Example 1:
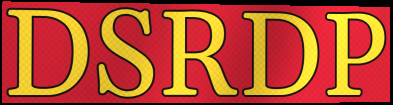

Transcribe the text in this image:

DSRDP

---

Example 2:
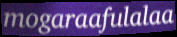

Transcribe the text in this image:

mogaraafulalaa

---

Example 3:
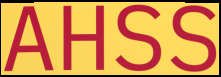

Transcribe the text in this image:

AHSS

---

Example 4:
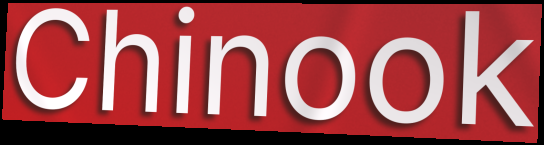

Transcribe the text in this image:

Chinook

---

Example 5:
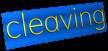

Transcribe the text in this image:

cleaving